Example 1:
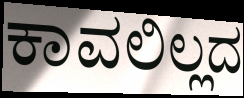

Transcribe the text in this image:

ಕಾವಲಿಲ್ಲದ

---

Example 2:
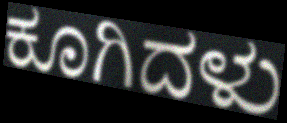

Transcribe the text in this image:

ಕೂಗಿದಳು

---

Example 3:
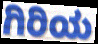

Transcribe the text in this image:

ಗಿರಿಯ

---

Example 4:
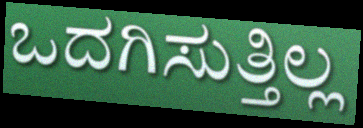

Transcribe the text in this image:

ಒದಗಿಸುತ್ತಿಲ್ಲ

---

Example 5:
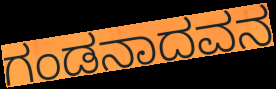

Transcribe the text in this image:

ಗಂಡನಾದವನ